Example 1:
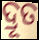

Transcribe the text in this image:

ଦ୍ରୂତ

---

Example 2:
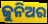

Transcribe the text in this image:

ଜୁନିଅର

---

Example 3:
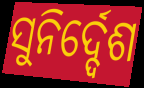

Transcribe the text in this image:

ସୁନିର୍ଦ୍ଦେଶ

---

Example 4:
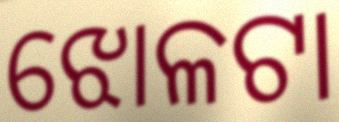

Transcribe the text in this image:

ଝୋଳଟା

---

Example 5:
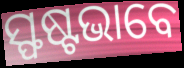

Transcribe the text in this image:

ସ୍ଫଷ୍ଟଭାବେ